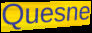
Quesne